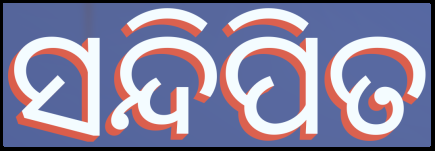
ସନ୍ଦିପିତ